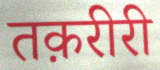
तक़रीरी